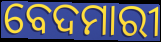
ବେଦମାରୀ